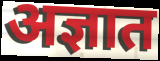
अज्ञात